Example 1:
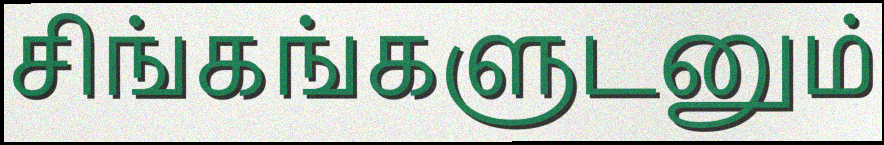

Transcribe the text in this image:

சிங்கங்களுடனும்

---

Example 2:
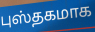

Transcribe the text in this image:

புஸ்தகமாக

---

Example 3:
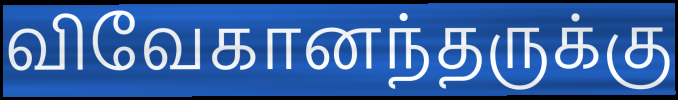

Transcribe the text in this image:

விவேகானந்தருக்கு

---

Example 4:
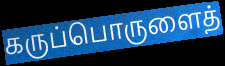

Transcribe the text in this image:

கருப்பொருளைத்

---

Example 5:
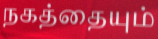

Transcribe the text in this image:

நகத்தையும்